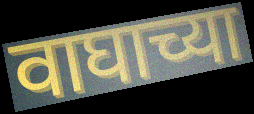
वाघाच्या